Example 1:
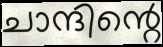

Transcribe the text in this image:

ചാന്ദിന്റെ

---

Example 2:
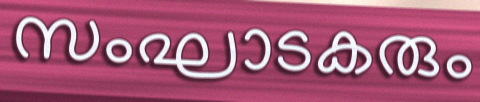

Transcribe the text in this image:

സംഘാടകരും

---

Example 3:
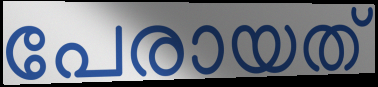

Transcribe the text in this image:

പേരായത്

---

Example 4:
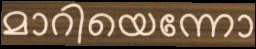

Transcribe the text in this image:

മാറിയെന്നോ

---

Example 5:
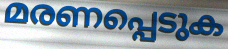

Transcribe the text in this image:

മരണപ്പെടുക